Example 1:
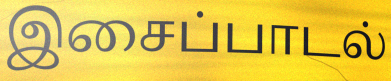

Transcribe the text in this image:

இசைப்பாடல்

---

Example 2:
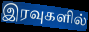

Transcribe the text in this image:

இரவுகளில்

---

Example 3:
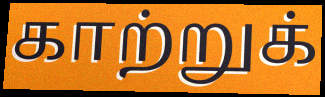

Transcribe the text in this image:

காற்றுக்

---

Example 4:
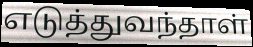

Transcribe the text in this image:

எடுத்துவந்தாள்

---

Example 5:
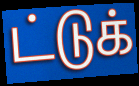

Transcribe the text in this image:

ட்டுக்